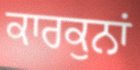
ਕਾਰਕੁਨਾਂ